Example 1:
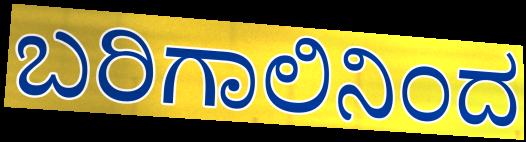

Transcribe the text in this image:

ಬರಿಗಾಲಿನಿಂದ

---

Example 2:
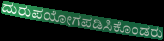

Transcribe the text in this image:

ದುರುಪಯೋಗಪಡಿಸಿಕೊಂಡರು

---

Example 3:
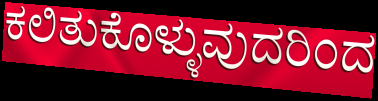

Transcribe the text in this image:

ಕಲಿತುಕೊಳ್ಳುವುದರಿಂದ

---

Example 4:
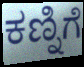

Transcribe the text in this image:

ಕಣ್ನಿಗೆ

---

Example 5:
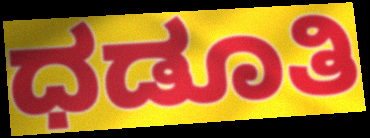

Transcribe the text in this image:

ಧಡೂತಿ